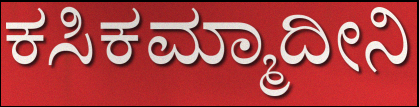
ಕಸಿಕಮ್ಮಾದೀನಿ